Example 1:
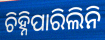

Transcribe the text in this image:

ଚିହ୍ନିପାରିଲିନି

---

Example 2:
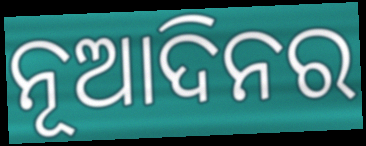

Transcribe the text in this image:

ନୂଆଦିନର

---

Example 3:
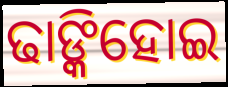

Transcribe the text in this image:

ଢାଙ୍କିହୋଇ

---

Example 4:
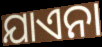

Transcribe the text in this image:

ଯାଏନା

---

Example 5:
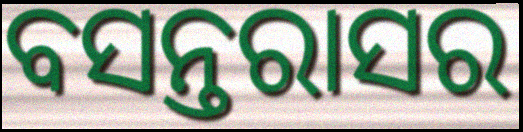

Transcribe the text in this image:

ବସନ୍ତରାସର